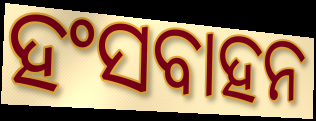
ହଂସବାହନ